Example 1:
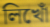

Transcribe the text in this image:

লিখোঁ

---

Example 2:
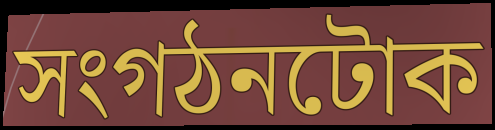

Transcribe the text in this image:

সংগঠনটোক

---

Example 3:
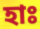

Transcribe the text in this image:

হাঃ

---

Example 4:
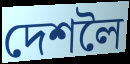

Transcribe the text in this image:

দেশলৈ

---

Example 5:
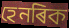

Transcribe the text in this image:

হেনৰিক